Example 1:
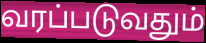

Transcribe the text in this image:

வரப்படுவதும்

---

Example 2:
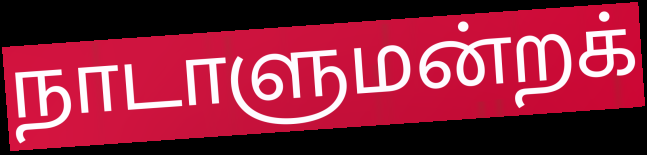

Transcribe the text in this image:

நாடாளுமன்றக்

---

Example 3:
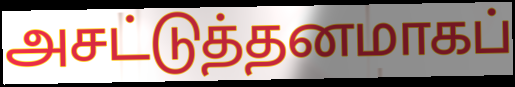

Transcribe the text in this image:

அசட்டுத்தனமாகப்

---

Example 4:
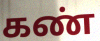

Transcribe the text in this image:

கண்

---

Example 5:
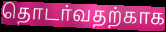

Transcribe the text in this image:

தொடர்வதற்காக